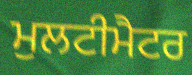
ਮੁਲਟੀਮੈਟਰ